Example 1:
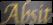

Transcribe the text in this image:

Absit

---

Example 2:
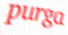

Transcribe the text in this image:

purga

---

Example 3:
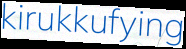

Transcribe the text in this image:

kirukkufying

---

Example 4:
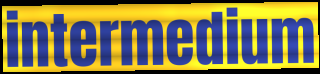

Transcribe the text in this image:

intermedium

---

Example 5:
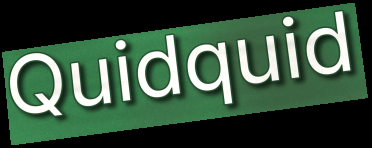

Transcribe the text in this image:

Quidquid